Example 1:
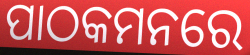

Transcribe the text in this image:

ପାଠକମନରେ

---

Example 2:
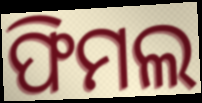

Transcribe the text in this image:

ଫିମଲ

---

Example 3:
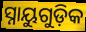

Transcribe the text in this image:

ସ୍ନାୟୁଗୁଡ଼ିକ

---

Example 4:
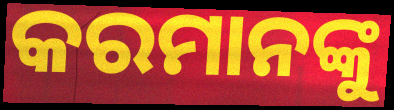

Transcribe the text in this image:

କରମାନଙ୍କୁ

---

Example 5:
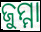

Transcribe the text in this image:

ଜୁମ୍ମା